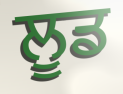
ਲੂਡ